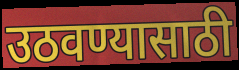
उठवण्यासाठी